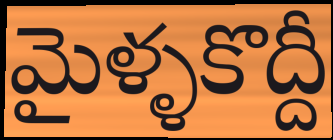
మైళ్ళకొద్దీ